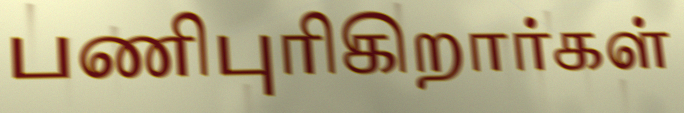
பணிபுரிகிறார்கள்